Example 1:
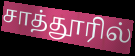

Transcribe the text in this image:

சாத்தூரில்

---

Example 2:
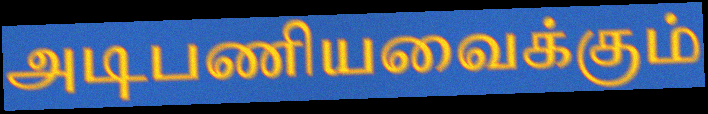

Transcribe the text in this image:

அடிபணியவைக்கும்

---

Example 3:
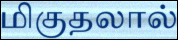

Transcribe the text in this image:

மிகுதலால்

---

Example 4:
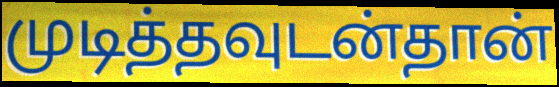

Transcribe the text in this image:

முடித்தவுடன்தான்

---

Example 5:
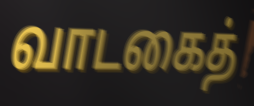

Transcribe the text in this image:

வாடகைத்